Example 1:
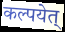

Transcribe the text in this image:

कल्पयेत्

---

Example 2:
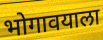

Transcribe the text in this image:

भोगावयाला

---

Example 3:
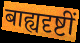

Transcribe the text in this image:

बाह्यदृष्टीं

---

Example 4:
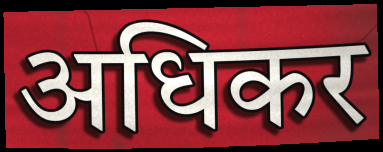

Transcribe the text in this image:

अधिकर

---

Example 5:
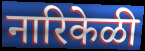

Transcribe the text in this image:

नारिकेळी